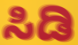
ಸಿಡಿ